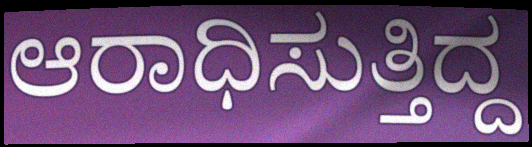
ಆರಾಧಿಸುತ್ತಿದ್ದ